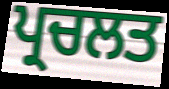
ਪ੍ਰਚਲਤ